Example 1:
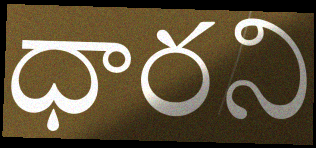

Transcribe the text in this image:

ధారని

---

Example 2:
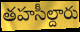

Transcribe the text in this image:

తహసీల్దారు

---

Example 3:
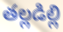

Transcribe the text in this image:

తల్లడిల్లి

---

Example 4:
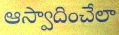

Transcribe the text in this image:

ఆస్వాదించేలా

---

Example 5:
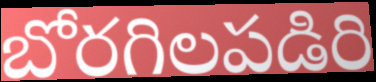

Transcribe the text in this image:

బోరగిలపడిరి